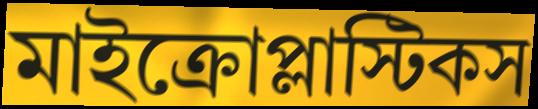
মাইক্রোপ্লাস্টিকস